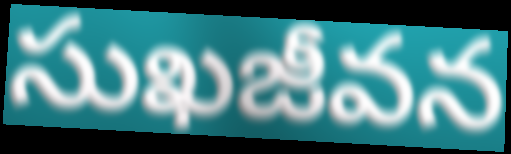
సుఖజీవన